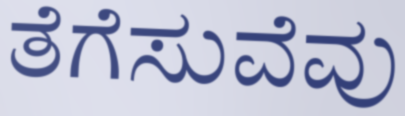
ತೆಗೆಸುವೆವು